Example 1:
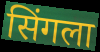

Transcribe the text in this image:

सिंगला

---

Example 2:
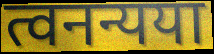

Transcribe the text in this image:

त्वनन्यया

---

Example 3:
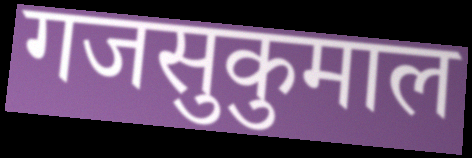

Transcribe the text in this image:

गजसुकुमाल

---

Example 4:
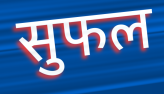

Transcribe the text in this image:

सुफल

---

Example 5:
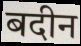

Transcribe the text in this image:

बदीन